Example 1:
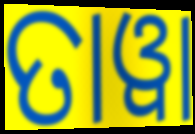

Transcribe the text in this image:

ତାୱା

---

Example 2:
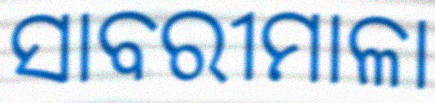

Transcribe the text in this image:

ସାବରୀମାଳା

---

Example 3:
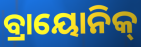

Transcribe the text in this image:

ବ୍ରାୟୋନିକ୍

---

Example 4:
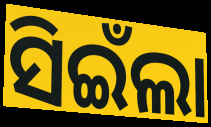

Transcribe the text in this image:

ସିଇଁଲା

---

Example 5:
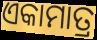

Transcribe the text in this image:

ଏକାମାତ୍ର